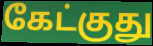
கேட்குது